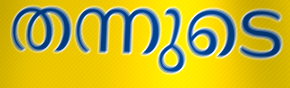
തന്നുടെ